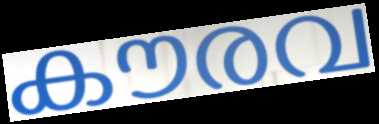
കൗരവ